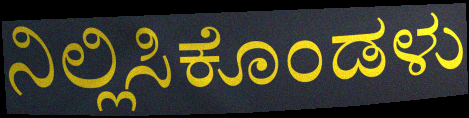
ನಿಲ್ಲಿಸಿಕೊಂಡಳು